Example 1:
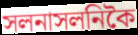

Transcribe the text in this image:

সলনাসলনিকৈ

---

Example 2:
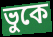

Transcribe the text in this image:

ভুকে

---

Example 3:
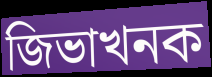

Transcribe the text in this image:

জিভাখনক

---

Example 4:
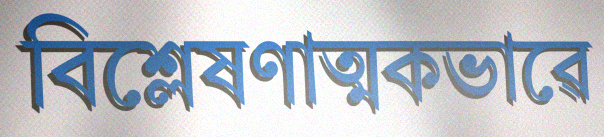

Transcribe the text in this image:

বিশ্লেষণাত্মকভাৱে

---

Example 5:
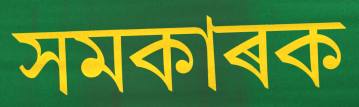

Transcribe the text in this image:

সমকাৰক